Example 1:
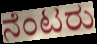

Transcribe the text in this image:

ನೆಂಟರು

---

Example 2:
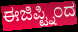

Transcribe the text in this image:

ಈಜಿಪ್ಟ್ನಿಂದ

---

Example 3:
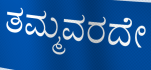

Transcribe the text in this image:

ತಮ್ಮವರದೇ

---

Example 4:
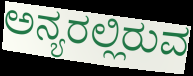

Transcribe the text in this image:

ಅನ್ಯರಲ್ಲಿರುವ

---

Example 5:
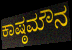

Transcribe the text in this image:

ಕಾಷ್ಠಮೌನ